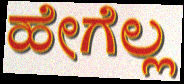
ಹೇಗೆಲ್ಲ